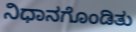
ನಿಧಾನಗೊಂಡಿತು